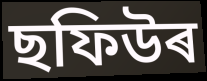
ছফিউৰ